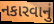
નકારવાનું